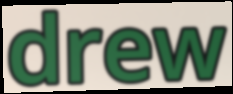
drew